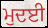
ਮੁਦਈ